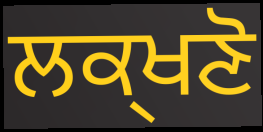
ਲਕ੍ਖਣੋ